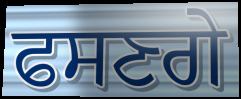
ਫਸਣਗੇ